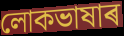
লোকভাষাৰ